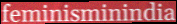
feminisminindia